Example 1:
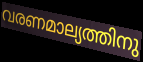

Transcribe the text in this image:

വരണമാല്യത്തിനു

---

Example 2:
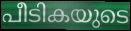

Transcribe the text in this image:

പീടികയുടെ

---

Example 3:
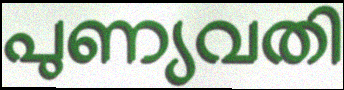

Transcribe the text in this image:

പുണ്യവതി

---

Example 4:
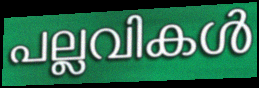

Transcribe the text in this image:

പല്ലവികൾ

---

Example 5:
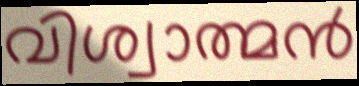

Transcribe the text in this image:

വിശ്വാത്മൻ